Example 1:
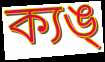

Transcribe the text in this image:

ক্যঙ্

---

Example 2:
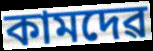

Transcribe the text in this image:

কামদেৱ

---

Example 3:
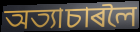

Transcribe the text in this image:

অত্যাচাৰলৈ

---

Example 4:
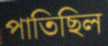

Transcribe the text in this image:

পাতিছিল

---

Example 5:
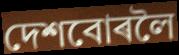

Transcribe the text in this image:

দেশবোৰলৈ